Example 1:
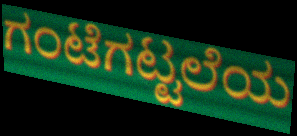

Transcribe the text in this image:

ಗಂಟೆಗಟ್ಟಲೆಯ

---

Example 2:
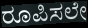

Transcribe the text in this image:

ರೂಪಿಸಲೇ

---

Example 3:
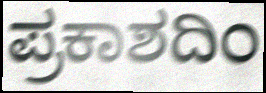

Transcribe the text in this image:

ಪ್ರಕಾಶದಿಂ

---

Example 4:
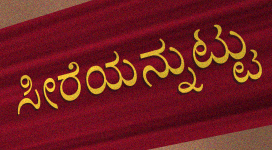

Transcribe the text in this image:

ಸೀರೆಯನ್ನುಟ್ಟು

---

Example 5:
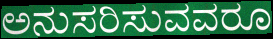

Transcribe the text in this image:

ಅನುಸರಿಸುವವರೂ